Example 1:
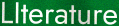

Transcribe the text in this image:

LIterature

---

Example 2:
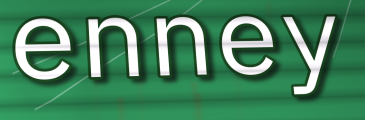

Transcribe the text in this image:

enney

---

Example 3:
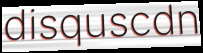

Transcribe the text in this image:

disquscdn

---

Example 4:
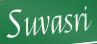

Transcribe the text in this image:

Suvasri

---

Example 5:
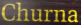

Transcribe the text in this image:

Churna